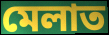
মেলাত